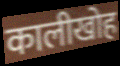
कालीखोह